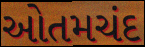
ઓતમચંદ